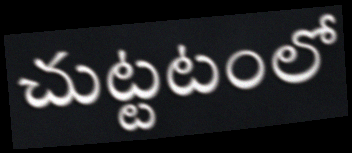
చుట్టటంలో